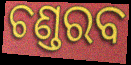
ଚଣ୍ଡରବ